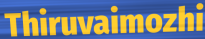
Thiruvaimozhi